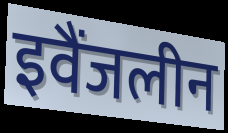
इवैंजलीन